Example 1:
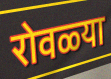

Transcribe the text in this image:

रोवळ्या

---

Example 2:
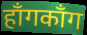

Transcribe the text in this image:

हाँगकाँग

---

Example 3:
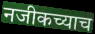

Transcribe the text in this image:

नजीकच्याच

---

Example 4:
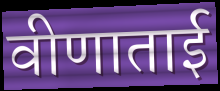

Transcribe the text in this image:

वीणाताई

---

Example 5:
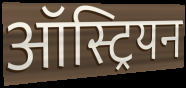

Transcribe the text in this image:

ऑस्ट्रियन